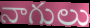
నాగులు